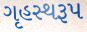
ગૃહસ્થરૂપ